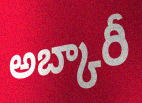
అబ్కారీ